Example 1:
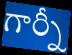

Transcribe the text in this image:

గార్నీ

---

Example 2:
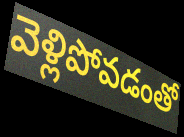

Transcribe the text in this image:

వెళ్లిపోవడంతో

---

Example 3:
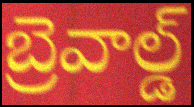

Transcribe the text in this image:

బ్రెవాల్డ్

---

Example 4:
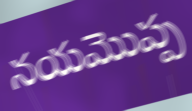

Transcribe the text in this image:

నయమొప్ప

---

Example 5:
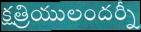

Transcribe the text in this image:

క్షత్రియులందర్నీ